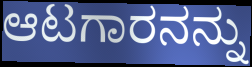
ಆಟಗಾರನನ್ನು